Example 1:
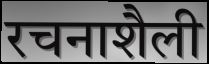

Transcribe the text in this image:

रचनाशैली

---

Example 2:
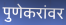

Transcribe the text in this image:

पुणेकरांवर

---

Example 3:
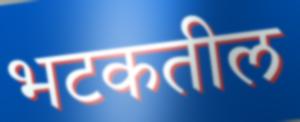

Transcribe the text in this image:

भटकतील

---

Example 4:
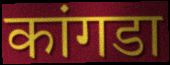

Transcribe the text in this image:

कांगडा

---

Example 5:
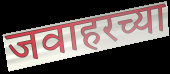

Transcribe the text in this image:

जवाहरच्या